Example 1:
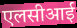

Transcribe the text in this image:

एलसीआई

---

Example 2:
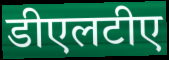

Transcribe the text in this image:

डीएलटीए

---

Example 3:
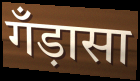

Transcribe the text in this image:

गँड़ासा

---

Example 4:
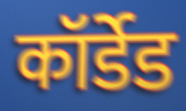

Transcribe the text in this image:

कॉर्डेड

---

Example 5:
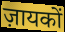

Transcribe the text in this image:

ज़ायकों